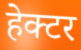
हेक्टर